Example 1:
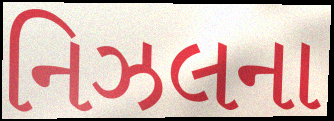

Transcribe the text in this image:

નિઝલના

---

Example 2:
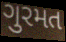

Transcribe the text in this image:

ગુરમત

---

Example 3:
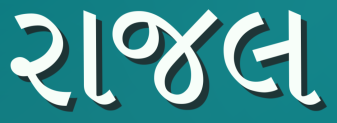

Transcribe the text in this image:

રાજલ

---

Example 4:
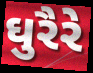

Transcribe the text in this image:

ઘુરૈરે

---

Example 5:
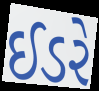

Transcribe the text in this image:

ઈડરે